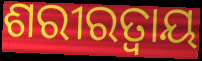
ଶରୀରତ୍ୱାୟ